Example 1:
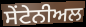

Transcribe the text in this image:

ਸੇਂਟੇਨੀਅਲ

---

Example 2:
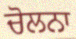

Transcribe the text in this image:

ਚੋਲਨਾ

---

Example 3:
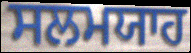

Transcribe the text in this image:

ਸਲਮਯਾਹ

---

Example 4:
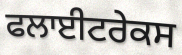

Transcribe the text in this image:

ਫਲਾਈਟਰੇਕਸ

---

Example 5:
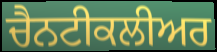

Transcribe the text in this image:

ਚੈਨਟੀਕਲੀਅਰ